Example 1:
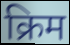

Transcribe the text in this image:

क्रिम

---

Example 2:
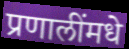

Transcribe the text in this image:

प्रणालींमधे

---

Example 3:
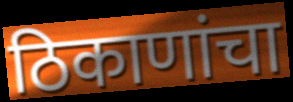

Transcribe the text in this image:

ठिकाणांचा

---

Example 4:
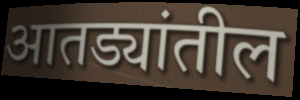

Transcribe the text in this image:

आतड्यांतील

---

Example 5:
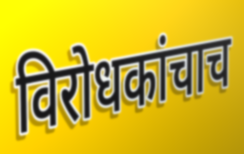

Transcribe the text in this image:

विरोधकांचाच